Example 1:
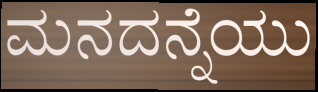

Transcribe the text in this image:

ಮನದನ್ನೆಯು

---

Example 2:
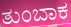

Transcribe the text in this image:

ತುಂಬಾಕ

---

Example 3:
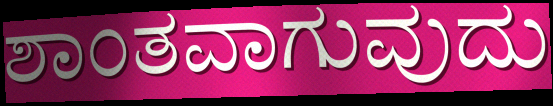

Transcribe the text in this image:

ಶಾಂತವಾಗುವುದು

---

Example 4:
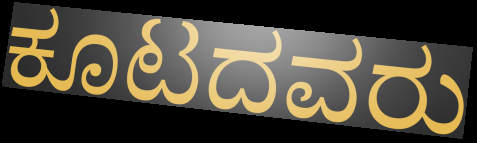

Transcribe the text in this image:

ಕೂಟದವರು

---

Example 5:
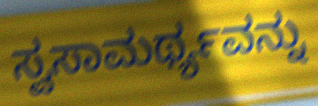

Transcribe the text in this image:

ಸ್ವಸಾಮರ್ಥ್ಯವನ್ನು